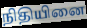
நிதியினை